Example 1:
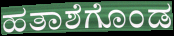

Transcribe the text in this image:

ಹತಾಶೆಗೊಂಡ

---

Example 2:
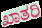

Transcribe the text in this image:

ಖಾತರಿ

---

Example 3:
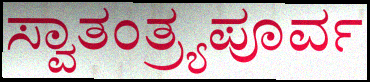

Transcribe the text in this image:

ಸ್ವಾತಂತ್ರ್ಯಪೂರ್ವ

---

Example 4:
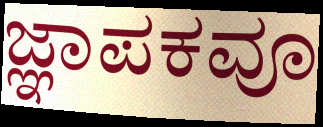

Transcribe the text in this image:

ಜ್ಞಾಪಕವೂ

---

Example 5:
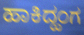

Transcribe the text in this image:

ಹಾಕಿದ್ಹಂಗ